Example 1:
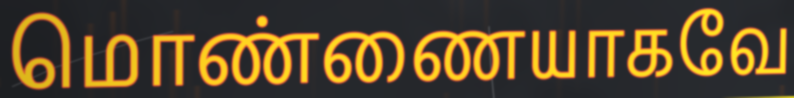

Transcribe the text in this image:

மொண்ணையாகவே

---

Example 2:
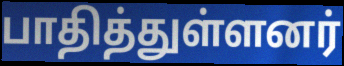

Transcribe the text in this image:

பாதித்துள்ளனர்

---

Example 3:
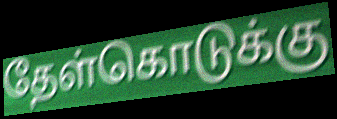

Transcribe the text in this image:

தேள்கொடுக்கு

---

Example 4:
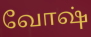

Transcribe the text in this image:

வோஷ்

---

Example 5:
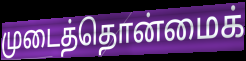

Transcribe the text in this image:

முடைத்தொன்மைக்